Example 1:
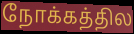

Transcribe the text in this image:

நோக்கத்தில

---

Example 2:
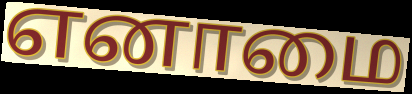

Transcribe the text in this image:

எனாமை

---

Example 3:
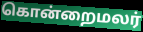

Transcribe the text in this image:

கொன்றைமலர்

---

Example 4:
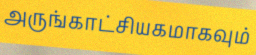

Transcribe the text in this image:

அருங்காட்சியகமாகவும்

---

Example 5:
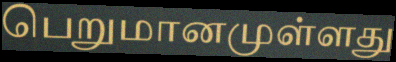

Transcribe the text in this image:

பெறுமானமுள்ளது